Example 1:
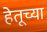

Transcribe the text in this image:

हेतूच्या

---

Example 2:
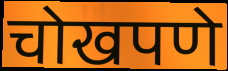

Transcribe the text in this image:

चोखपणे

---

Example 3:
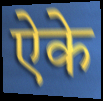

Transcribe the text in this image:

ऐके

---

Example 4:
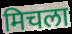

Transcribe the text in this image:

मिचला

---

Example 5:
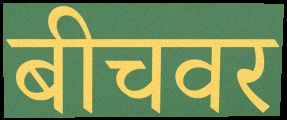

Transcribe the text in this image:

बीचवर